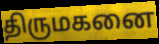
திருமகனை